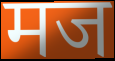
मज